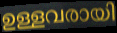
ഉള്ളവരായി